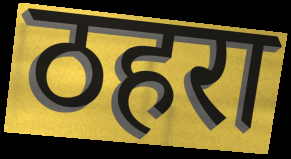
ठहरा